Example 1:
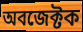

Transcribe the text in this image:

অবজেক্টক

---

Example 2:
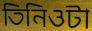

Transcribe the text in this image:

তিনিওটা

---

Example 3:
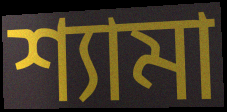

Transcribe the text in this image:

শ্যামা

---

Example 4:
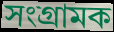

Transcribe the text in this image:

সংগ্ৰামক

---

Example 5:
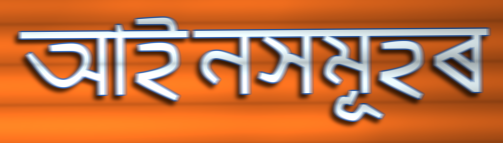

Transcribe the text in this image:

আইনসমূহৰ